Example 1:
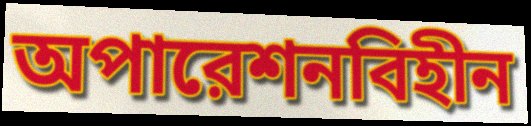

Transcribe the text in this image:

অপারেশনবিহীন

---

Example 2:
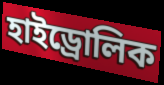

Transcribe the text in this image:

হাইড্রোলিক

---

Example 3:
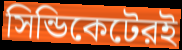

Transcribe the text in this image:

সিন্ডিকেটেরই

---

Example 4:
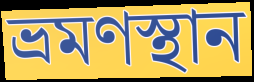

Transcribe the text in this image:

ভ্রমণস্থান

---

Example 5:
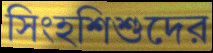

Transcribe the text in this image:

সিংহশিশুদের